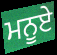
ਮਨੂਏ